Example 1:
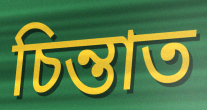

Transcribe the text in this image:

চিন্তাত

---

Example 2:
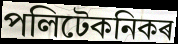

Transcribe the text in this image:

পলিটেকনিকৰ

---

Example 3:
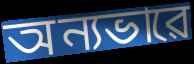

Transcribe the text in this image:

অন্যভাৱে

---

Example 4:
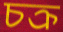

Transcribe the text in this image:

চক্ৰ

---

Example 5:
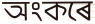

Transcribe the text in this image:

অংকৰে